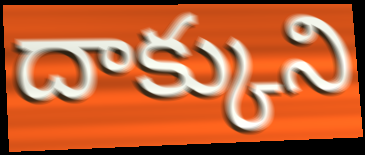
దాక్కుని